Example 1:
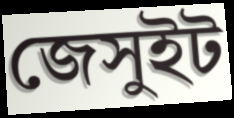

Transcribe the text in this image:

জেসুইট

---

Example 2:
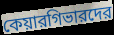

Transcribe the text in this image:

কেয়ারগিভারদের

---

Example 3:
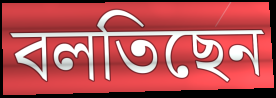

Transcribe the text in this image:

বলতিছেন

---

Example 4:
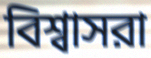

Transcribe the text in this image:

বিশ্বাসরা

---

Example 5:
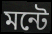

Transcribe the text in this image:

মন্টে